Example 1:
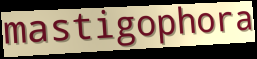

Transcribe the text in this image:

mastigophora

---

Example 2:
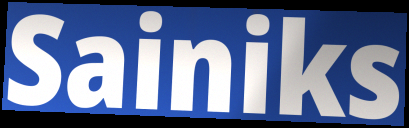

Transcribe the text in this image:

Sainiks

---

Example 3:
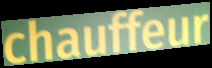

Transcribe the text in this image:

chauffeur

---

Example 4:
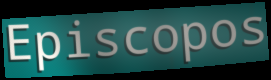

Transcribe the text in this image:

Episcopos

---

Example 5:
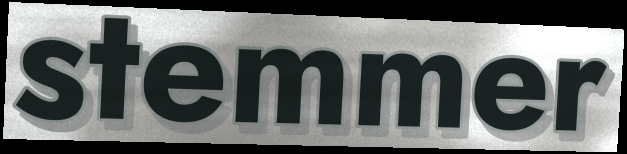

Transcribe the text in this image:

stemmer